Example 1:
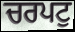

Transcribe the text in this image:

ਚਰਪਟੁ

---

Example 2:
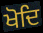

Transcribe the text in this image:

ਖੋਦਿ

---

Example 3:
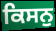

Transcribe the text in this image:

ਕਿਸਨੁ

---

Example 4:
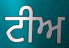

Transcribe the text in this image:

ਟੀਅ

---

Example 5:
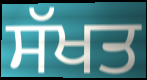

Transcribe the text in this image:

ਸੱਖਤ